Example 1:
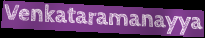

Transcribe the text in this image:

Venkataramanayya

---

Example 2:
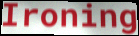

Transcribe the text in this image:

Ironing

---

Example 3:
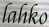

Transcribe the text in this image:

lahko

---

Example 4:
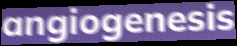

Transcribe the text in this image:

angiogenesis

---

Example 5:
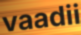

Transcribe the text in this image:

vaadii